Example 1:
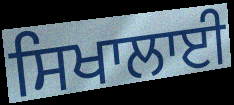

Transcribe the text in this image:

ਸਿਖਾਲਾਈ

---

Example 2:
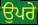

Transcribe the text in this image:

ਉਪਰੇ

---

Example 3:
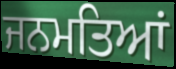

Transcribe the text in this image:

ਜਨਮਤਿਆਂ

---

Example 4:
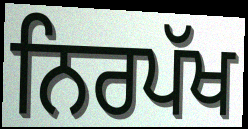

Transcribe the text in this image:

ਨਿਰਪੱਖ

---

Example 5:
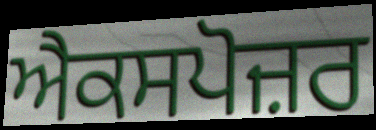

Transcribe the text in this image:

ਐਕਸਪੋਜ਼ਰ